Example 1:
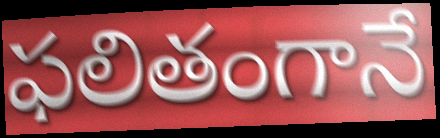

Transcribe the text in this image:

ఫలితంగానే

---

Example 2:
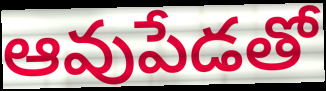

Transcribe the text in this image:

ఆవుపేడతో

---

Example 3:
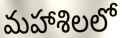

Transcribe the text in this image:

మహాశిలలో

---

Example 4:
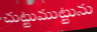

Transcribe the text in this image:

చుట్టుముట్టును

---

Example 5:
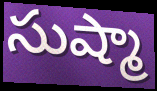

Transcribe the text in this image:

సుష్మా